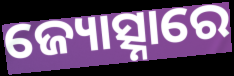
ଜ୍ୟୋତ୍ସ୍ନାରେ